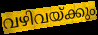
വഴിവയ്ക്കും